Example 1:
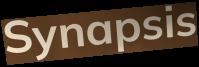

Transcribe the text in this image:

Synapsis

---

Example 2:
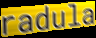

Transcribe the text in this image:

radula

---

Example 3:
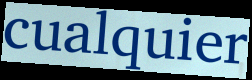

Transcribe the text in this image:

cualquier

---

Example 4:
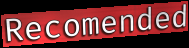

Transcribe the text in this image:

Recomended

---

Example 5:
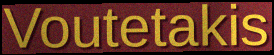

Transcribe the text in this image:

Voutetakis